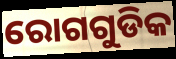
ରୋଗଗୁଡିକ